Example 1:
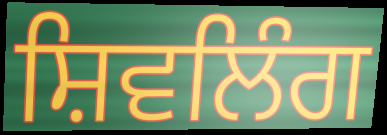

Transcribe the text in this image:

ਸ਼ਿਵਲਿੰਗ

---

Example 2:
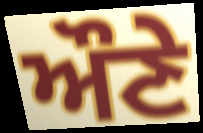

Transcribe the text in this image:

ਔਣੇ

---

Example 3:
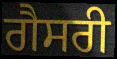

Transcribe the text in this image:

ਗੈਸਰੀ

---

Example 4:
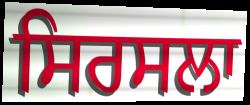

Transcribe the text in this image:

ਸਿਰਸਲਾ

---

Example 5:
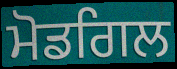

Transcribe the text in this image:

ਮੋਡਗਿਲ